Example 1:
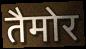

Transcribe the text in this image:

तैमोर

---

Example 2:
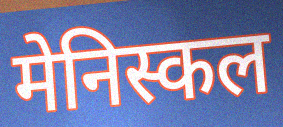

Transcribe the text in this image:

मेनिस्कल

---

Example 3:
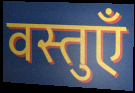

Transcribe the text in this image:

वस्‍तुएँ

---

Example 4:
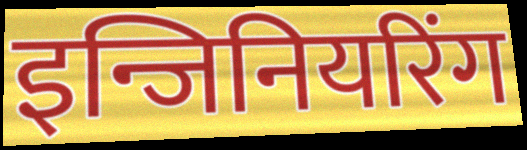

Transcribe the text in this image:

इन्जिनियरिंग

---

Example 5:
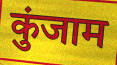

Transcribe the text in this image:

कुंजाम